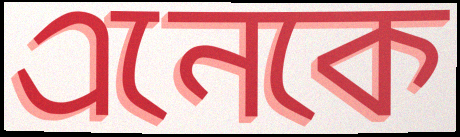
এনেকে